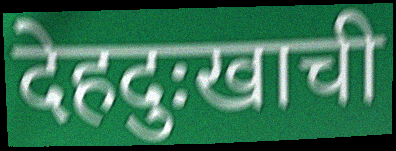
देहदुःखाची